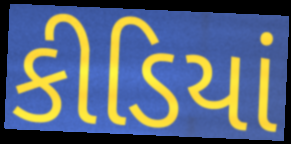
કીડિયાં